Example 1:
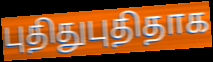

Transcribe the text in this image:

புதிதுபுதிதாக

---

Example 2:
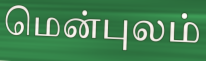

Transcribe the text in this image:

மென்புலம்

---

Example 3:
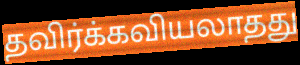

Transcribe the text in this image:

தவிர்க்கவியலாதது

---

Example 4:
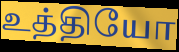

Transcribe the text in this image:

உத்தியோ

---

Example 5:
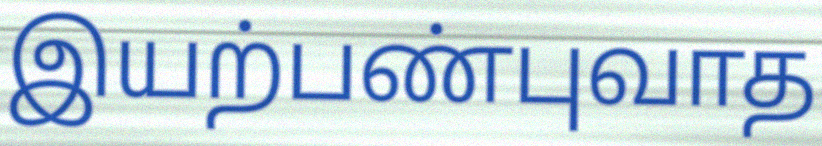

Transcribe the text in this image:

இயற்பண்புவாத